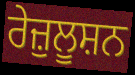
ਰੇਜ਼ੁਲੂਸ਼ਨ